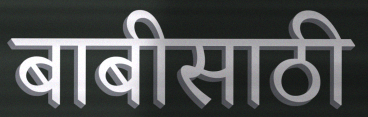
बाबीसाठी